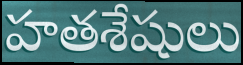
హతశేషులు